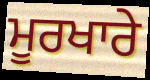
ਮੂਰਖਾਰੇ